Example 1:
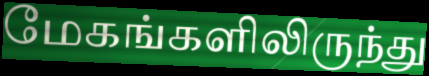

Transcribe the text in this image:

மேகங்களிலிருந்து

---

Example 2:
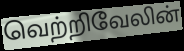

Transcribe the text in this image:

வெற்றிவேலின்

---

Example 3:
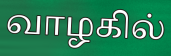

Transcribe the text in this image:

வாழகில்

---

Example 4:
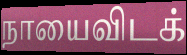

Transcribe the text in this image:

நாயைவிடக்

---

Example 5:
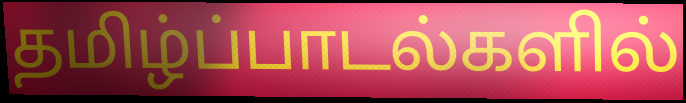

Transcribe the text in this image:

தமிழ்ப்பாடல்களில்